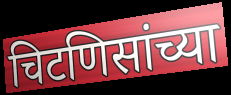
चिटणिसांच्या